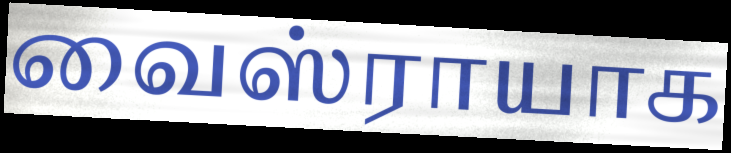
வைஸ்ராயாக